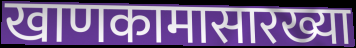
खाणकामासारख्या